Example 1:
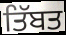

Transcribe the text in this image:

ਤਿੱਬਤ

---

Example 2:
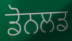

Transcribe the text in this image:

ਡੋਨਲਡ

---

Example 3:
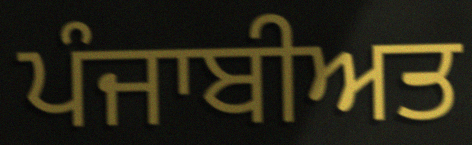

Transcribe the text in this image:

ਪੰਜਾਬੀਅਤ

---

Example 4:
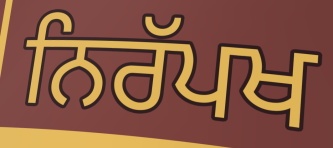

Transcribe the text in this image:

ਨਿਰੱਪਖ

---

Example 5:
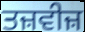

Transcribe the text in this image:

ਤਜ਼ਵੀਜ਼